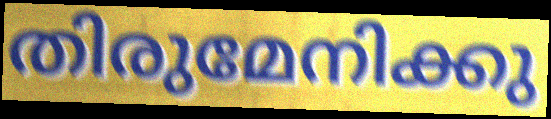
തിരുമേനിക്കു